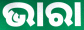
ଭାରା